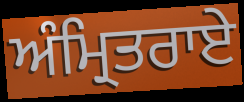
ਅੰਮ੍ਰਿਤਰਾਏ